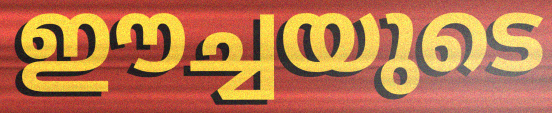
ഈച്ചയുടെ